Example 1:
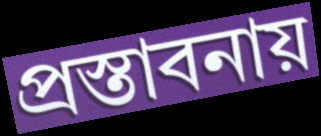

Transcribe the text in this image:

প্রস্তাবনায়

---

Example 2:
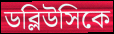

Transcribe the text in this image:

ডব্লিউসিকে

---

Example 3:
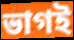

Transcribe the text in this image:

ভাগই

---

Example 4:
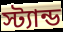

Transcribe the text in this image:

স্ট্যান্ড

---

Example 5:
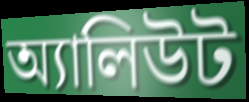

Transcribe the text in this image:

অ্যালিউট